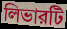
লিভারটি